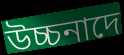
উচ্চনাদে